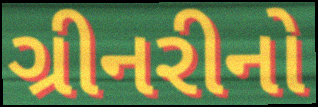
ગ્રીનરીનો